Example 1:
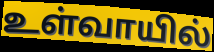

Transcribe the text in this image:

உள்வாயில்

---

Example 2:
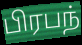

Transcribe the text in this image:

பிரபந்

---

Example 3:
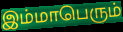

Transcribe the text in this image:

இம்மாபெரும்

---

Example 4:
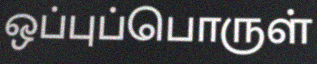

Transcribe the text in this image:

ஒப்புப்பொருள்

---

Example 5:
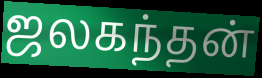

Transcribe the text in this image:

ஜலகந்தன்